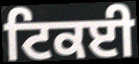
ਟਿਕਈ